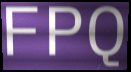
FPQ